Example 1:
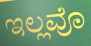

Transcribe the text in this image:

ಇಲ್ಲವೊ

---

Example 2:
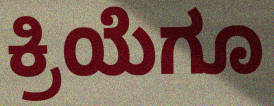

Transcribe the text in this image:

ಕ್ರಿಯೆಗೂ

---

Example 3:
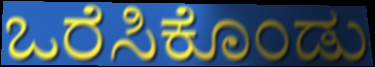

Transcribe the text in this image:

ಒರೆಸಿಕೊಂಡು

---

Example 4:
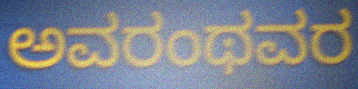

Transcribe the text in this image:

ಅವರಂಥವರ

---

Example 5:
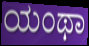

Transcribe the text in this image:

ಯಂಥಾ